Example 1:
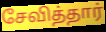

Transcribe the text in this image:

சேவித்தார்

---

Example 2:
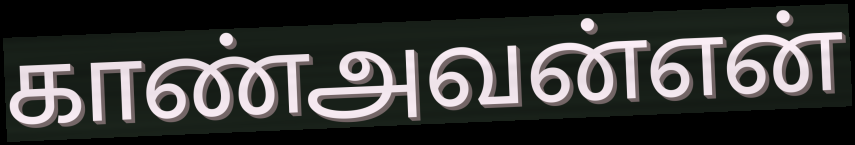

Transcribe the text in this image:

காண்அவன்என்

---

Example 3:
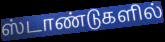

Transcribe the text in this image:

ஸ்டாண்டுகளில்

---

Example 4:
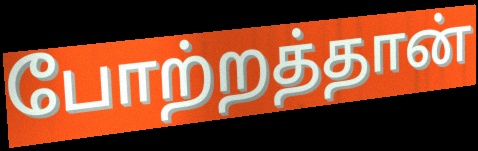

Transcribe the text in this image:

போற்றத்தான்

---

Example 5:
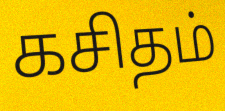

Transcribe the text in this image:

கசிதம்